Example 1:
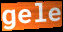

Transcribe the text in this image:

gele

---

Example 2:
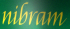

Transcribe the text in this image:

nibram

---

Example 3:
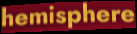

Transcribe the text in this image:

hemisphere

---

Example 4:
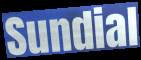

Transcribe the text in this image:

Sundial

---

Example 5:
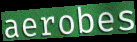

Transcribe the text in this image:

aerobes